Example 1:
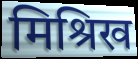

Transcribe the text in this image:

मिश्रिख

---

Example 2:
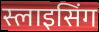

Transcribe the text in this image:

स्लाइसिंग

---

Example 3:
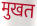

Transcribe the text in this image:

मुखत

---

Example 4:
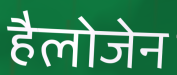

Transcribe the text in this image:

हैलोजेन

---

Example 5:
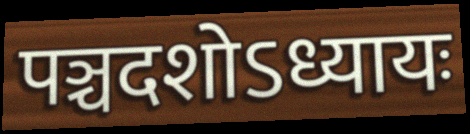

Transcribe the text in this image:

पञ्चदशोऽध्यायः